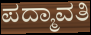
ಪದ್ಮಾವತಿ